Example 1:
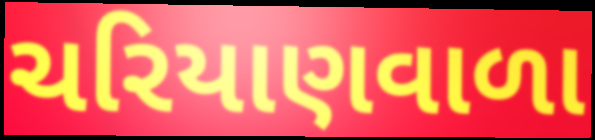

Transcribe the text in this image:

ચરિયાણવાળા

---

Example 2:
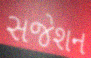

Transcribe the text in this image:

સજેશન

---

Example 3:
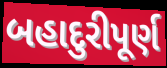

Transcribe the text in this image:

બહાદુરીપૂર્ણ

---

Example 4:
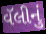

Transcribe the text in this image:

વૅલીનું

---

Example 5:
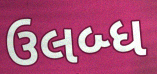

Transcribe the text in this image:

ઉલબ્ધ